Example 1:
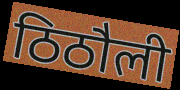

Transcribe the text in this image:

ठिठौली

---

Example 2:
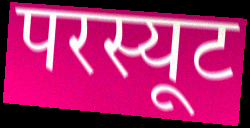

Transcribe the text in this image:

परस्यूट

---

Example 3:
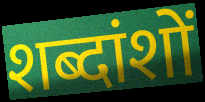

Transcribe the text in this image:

शब्दांशों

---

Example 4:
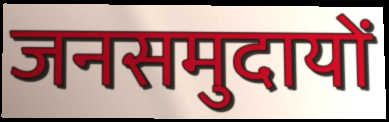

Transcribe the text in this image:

जनसमुदायों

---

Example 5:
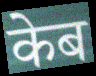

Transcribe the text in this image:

केब